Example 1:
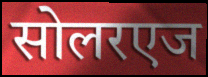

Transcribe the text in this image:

सोलरएज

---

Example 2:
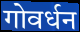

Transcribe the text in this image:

गोवर्धन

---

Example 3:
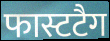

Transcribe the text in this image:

फास्टटैग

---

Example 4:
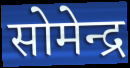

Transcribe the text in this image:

सोमेन्द्र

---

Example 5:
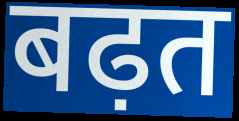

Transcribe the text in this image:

बढ़त